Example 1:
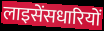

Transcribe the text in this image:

लाइसेंसधारियों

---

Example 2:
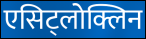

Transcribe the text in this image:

एसिट्लोक्लिन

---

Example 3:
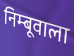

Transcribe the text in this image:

निम्बूवाला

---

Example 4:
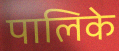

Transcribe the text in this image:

पालिके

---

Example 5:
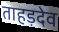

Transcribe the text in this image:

ताहड़देव